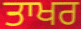
ਤਾਖਰ